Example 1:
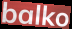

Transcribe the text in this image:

balko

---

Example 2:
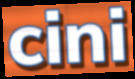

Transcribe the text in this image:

cini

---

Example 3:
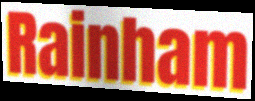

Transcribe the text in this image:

Rainham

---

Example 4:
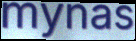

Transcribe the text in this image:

mynas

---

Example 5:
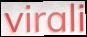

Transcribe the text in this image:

virali